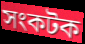
সংকটক